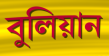
বুলিয়ান